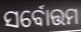
ସର୍ବୋତ୍ତମ